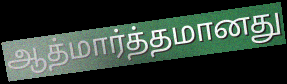
ஆத்மார்த்தமானது